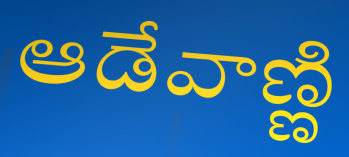
ఆడేవాణ్ణి